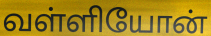
வள்ளியோன்